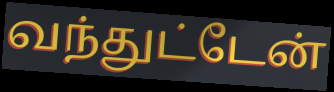
வந்துட்டேன்